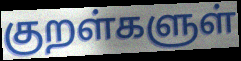
குறள்களுள்